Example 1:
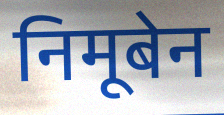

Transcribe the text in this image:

निमूबेन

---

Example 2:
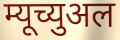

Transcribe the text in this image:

म्यूच्युअल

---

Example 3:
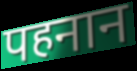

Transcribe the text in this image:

पहनान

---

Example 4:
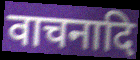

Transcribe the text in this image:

वाचनादि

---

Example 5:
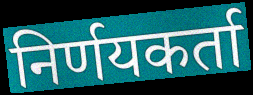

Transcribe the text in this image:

निर्णयकर्ता